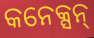
କନେକ୍ସନ୍